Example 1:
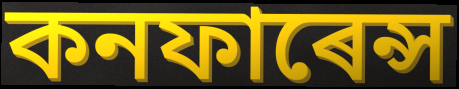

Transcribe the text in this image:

কনফাৰেন্স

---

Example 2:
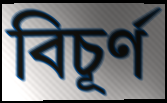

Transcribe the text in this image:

বিচূৰ্ণ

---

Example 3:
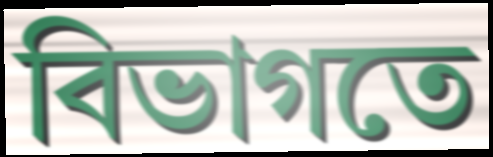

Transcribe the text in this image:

বিভাগতে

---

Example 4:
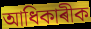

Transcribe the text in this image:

আধিকাৰীক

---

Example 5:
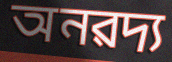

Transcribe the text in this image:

অনৱদ্য